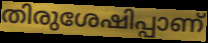
തിരുശേഷിപ്പാണ്